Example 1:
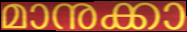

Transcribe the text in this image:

മാനുക്കാ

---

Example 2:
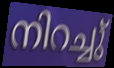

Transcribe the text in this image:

നിറച്ചു്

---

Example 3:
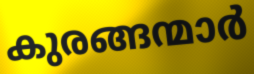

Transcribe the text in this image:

കുരങ്ങന്മാർ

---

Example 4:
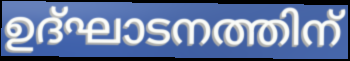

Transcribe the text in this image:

ഉദ്ഘാടനത്തിന്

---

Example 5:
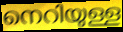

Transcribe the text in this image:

നെറിയുള്ള